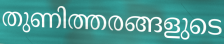
തുണിത്തരങ്ങളുടെ